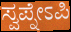
ಸ್ವಪ್ನೇಽಪಿ